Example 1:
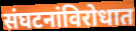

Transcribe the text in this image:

संघटनांविरोधात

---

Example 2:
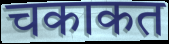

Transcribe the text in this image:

चकाकत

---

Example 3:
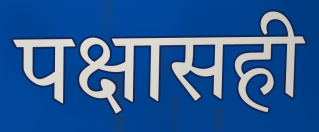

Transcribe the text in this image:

पक्षासही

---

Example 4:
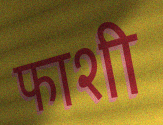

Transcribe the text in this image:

फाशी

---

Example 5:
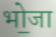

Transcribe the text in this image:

भो॒जा